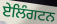
ਏਲਿੰਗਟਨ